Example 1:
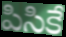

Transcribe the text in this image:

పిసికే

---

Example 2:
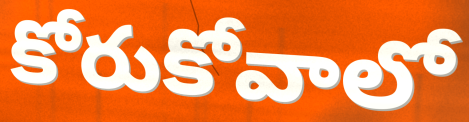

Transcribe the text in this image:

కోరుకోవాలో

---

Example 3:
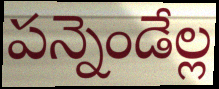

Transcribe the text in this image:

పన్నెండేల్ల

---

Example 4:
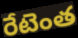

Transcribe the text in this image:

రేటెంత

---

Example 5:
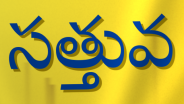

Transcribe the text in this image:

సత్తువ